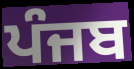
ਪੰਜਬ